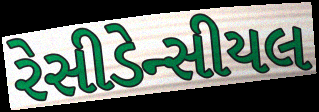
રેસીડેન્સીયલ